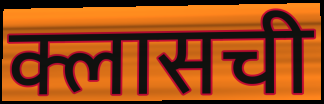
क्लासची